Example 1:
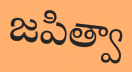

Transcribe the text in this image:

జపిత్వా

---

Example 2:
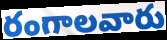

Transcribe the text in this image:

రంగాలవారు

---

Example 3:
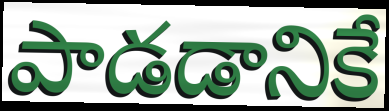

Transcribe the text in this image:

పాడడానికే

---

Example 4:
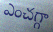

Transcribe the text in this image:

ఎంచగ్గా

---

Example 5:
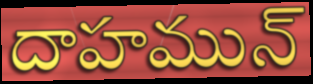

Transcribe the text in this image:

దాహమున్